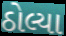
ઠોલ્યા